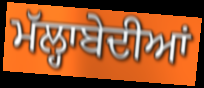
ਮੱਲ੍ਹਾਬੇਦੀਆਂ